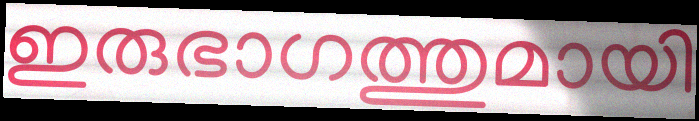
ഇരുഭാഗത്തുമായി